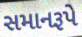
સમાનરૂપે